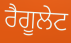
ਰੈਗੂਲੇਟ